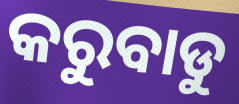
କରୁବାଡୁ